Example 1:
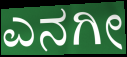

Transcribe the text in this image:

ಎನಗೀ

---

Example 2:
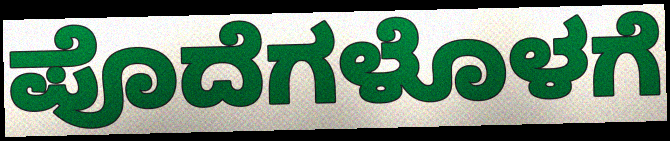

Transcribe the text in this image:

ಪೊದೆಗಳೊಳಗೆ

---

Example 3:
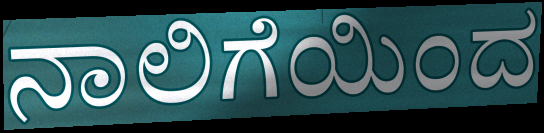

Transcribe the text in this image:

ನಾಲಿಗೆಯಿಂದ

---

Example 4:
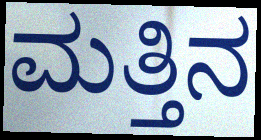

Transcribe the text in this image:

ಮತ್ತಿನ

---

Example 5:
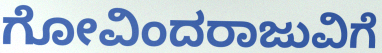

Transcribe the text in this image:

ಗೋವಿಂದರಾಜುವಿಗೆ